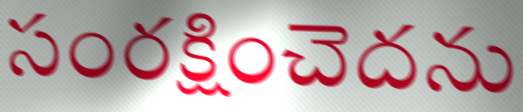
సంరక్షించెదను